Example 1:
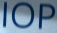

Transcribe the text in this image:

IOP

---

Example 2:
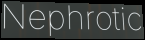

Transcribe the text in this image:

Nephrotic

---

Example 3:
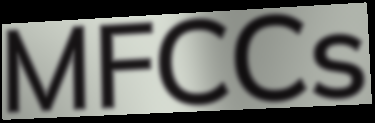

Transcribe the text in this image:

MFCCs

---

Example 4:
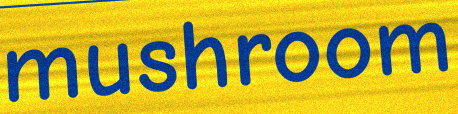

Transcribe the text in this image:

mushroom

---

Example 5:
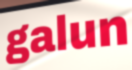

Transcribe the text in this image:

galun